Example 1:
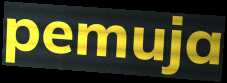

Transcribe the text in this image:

pemuja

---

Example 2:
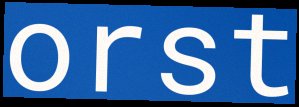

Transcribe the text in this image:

orst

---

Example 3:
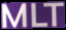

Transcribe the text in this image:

MLT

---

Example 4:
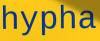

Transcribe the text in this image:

hypha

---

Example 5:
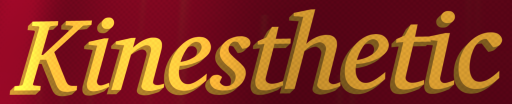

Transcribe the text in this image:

Kinesthetic